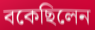
বকেছিলেন